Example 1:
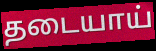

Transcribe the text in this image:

தடையாய்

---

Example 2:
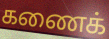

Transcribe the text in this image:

கணைக்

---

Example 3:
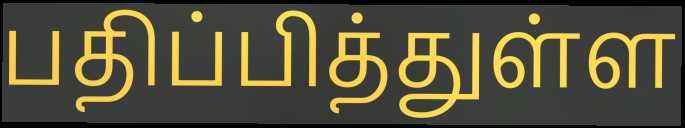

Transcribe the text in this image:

பதிப்பித்துள்ள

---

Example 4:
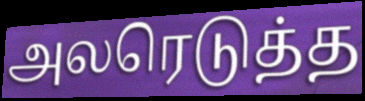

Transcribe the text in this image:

அலரெடுத்த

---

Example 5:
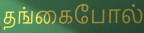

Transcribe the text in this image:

தங்கைபோல்